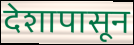
देशापासून